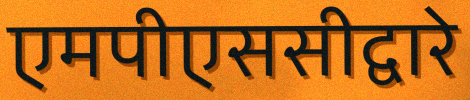
एमपीएससीद्वारे